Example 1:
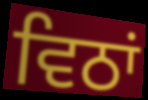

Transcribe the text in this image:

ਵਿਠਾਂ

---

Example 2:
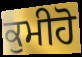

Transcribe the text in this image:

ਕੁਮੀਹੋ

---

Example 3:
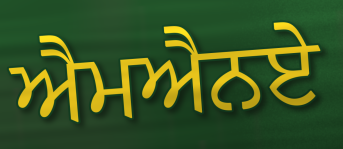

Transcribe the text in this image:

ਐਮਐਨਏ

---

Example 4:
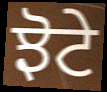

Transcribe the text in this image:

ਝੋਟੇ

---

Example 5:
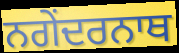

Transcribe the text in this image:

ਨਗੇਂਦਰਨਾਥ